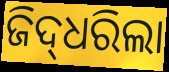
ଜିଦ୍‌ଧରିଲା